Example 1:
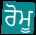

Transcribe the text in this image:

ਰੋਮੂ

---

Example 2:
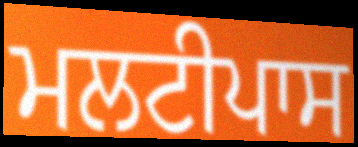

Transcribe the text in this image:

ਮਲਟੀਪਾਸ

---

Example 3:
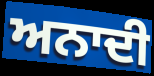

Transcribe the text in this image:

ਅਨਾਦੀ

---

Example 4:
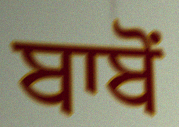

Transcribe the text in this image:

ਬਾਬੋਂ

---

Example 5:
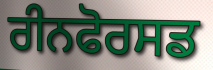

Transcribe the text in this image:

ਰੀਨਫੋਰਸਡ